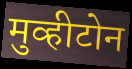
मुव्हीटोन